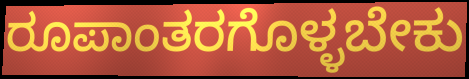
ರೂಪಾಂತರಗೊಳ್ಳಬೇಕು